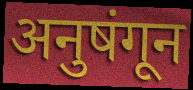
अनुषंगून